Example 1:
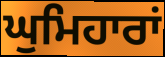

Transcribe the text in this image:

ਘੁਮਿਹਾਰਾਂ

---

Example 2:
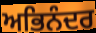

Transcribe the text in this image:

ਅਭਿਨੰਦਰ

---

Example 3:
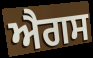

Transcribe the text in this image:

ਐਗਸ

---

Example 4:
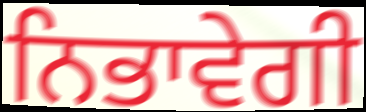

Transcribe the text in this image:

ਨਿਭਾਵੇਗੀ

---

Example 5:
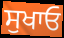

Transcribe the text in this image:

ਸੁਖਾਓ